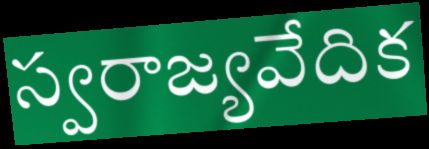
స్వరాజ్యవేదిక